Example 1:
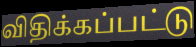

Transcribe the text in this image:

விதிக்கப்பட்டு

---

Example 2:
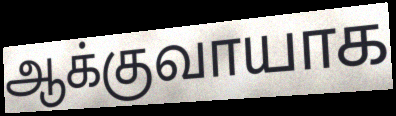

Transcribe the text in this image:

ஆக்குவாயாக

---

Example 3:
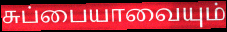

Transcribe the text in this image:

சுப்பையாவையும்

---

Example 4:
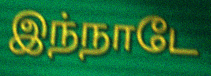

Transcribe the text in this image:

இந்நாடே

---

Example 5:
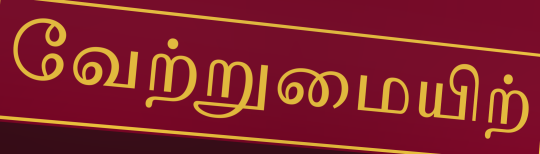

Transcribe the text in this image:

வேற்றுமையிற்